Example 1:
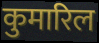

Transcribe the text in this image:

कुमारिल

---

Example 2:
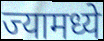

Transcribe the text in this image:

ज्यामध्ये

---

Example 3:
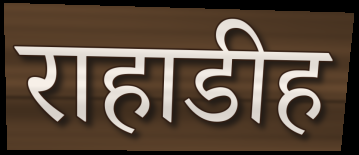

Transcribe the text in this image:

राहाडीह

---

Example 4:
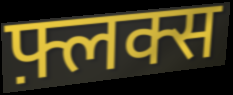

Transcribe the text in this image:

फ़्लक्स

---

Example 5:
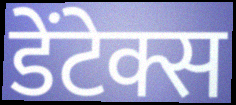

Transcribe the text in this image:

डेंटेक्स